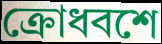
ক্রোধবশে